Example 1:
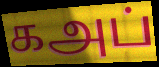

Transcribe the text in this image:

கஅப்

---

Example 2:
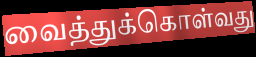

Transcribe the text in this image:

வைத்துக்கொள்வது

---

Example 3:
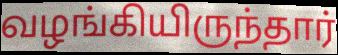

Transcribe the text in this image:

வழங்கியிருந்தார்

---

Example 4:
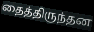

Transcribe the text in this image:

தைத்திருந்தன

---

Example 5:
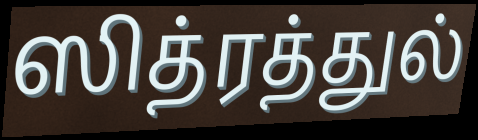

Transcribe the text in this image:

ஸித்ரத்துல்